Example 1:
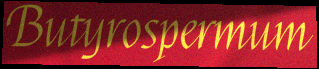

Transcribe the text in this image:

Butyrospermum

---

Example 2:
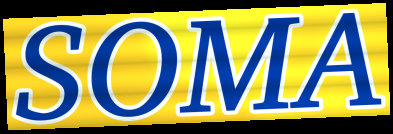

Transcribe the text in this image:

SOMA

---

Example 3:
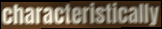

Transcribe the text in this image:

characteristically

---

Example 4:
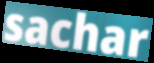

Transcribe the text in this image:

sachar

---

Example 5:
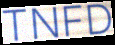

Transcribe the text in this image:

TNFD